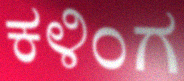
ಕಳಿಂಗ